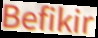
Befikir